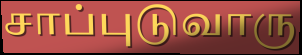
சாப்புடுவாரு